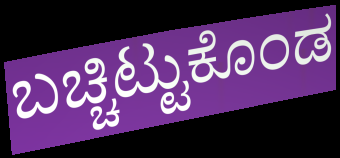
ಬಚ್ಚಿಟ್ಟುಕೊಂಡ